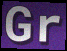
Gr